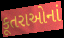
કૂતરાઓનાં